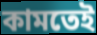
কামতেই